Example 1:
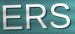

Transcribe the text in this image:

ERS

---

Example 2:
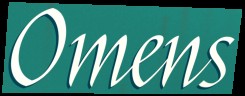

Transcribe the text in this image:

Omens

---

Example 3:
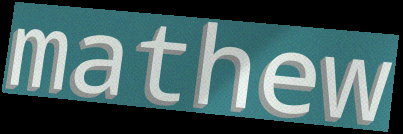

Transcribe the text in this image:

mathew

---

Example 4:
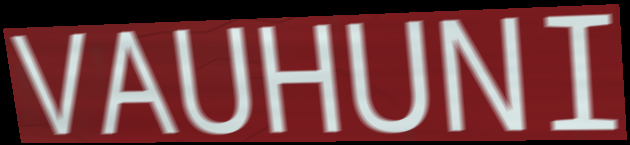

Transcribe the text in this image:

VAUHUNI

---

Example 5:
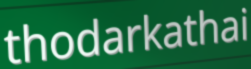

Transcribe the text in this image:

thodarkathai